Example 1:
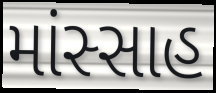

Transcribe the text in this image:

માંસ્સાહ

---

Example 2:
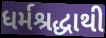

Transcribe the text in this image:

ધર્મશ્રદ્ધાથી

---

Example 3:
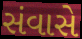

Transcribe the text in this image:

સંવાસે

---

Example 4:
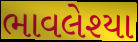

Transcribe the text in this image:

ભાવલેશ્યા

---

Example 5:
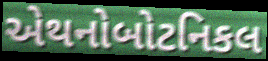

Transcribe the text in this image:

એથનોબોટનિકલ